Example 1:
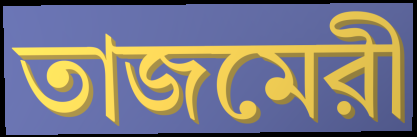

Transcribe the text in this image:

তাজমেরী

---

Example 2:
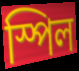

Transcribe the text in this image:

স্পিল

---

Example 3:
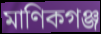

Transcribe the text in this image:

মাণিকগঞ্জ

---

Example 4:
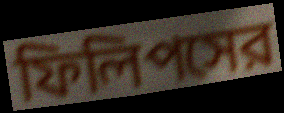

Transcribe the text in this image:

ফিলিপসের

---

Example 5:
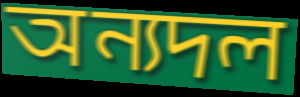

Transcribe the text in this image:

অন্যদল